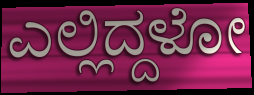
ಎಲ್ಲಿದ್ದಳೋ